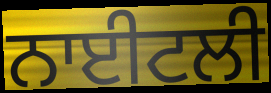
ਨਾਈਟਲੀ